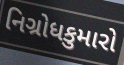
નિગ્રોધકુમારો